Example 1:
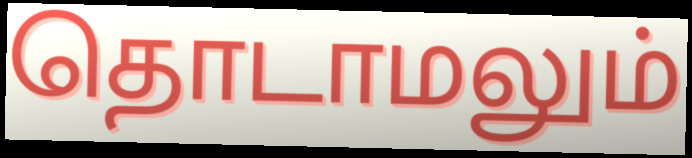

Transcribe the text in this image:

தொடாமலும்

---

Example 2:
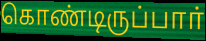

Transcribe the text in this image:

கொண்டிருப்பார்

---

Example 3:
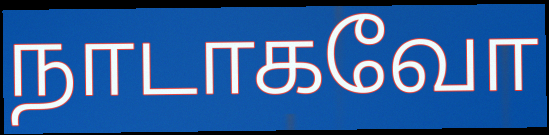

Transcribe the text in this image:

நாடாகவோ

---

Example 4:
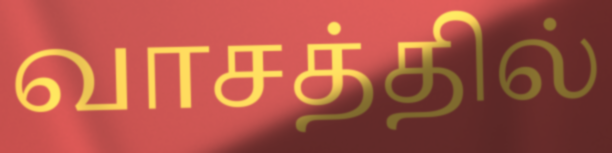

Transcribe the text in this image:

வாசத்தில்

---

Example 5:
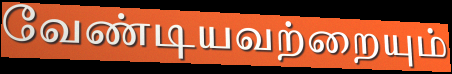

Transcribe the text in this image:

வேண்டியவற்றையும்